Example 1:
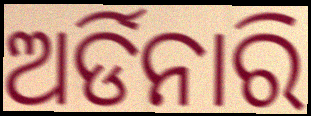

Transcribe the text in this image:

ଅର୍ଡିନାରି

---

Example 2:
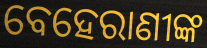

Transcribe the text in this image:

ବେହେରାଣୀଙ୍କ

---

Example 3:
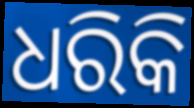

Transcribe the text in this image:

ଧରିକି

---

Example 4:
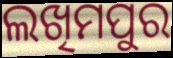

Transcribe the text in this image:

ଲଖିମପୁର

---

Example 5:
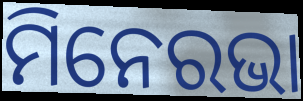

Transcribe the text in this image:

ମିନେରଭା